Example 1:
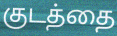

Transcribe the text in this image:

குடத்தை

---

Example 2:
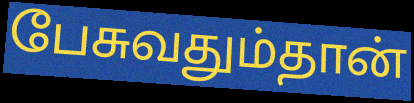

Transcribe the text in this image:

பேசுவதும்தான்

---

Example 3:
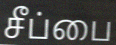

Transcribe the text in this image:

சீப்பை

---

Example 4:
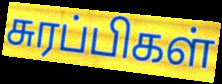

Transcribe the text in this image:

சுரப்பிகள்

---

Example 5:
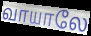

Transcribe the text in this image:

வாயாலே